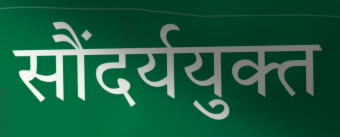
सौंदर्ययुक्त